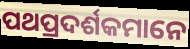
ପଥପ୍ରଦର୍ଶକମାନେ